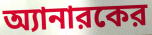
অ্যানারকের